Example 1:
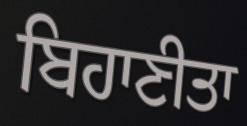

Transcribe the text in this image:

ਬਿਹਾਣੀਤਾ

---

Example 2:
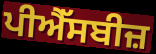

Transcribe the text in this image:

ਪੀਐੱਸਬੀਜ਼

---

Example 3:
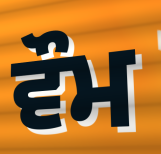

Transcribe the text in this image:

ਵੌਮ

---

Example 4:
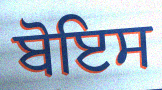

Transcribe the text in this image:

ਬੋਇਸ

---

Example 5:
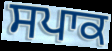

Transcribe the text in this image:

ਸਪਾਕ